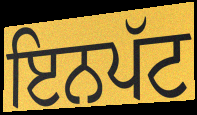
ਇਨਪੱਟ